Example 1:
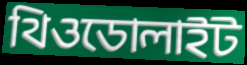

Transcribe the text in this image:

থিওডোলাইট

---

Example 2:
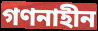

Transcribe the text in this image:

গণনাহীন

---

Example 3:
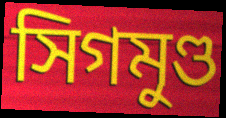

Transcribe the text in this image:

সিগমুণ্ড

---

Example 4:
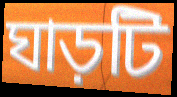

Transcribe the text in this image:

ঘাড়টি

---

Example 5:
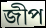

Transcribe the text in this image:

জীপ